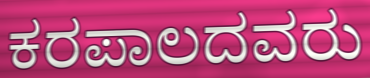
ಕರಪಾಲದವರು